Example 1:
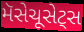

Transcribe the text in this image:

મૅસેચૂસેટ્સ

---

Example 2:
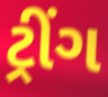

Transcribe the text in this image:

ટ્રીંગ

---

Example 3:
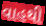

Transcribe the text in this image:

વાહથી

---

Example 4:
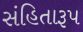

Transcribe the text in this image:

સંહિતારૂપ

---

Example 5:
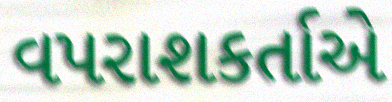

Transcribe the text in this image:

વપરાશકર્તાએ